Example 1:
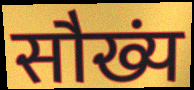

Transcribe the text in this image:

सौख्यं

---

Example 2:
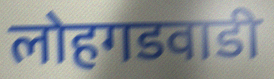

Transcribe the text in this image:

लोहगडवाडी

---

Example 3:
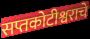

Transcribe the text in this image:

सप्तकोटीश्वराचे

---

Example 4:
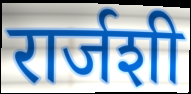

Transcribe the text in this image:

रार्जशी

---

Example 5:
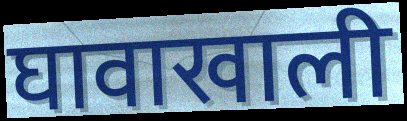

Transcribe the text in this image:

घावाखाली